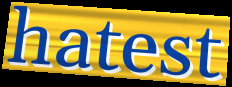
hatest